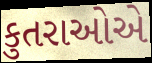
કુતરાઓએ